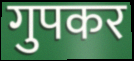
गुपकर